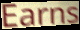
Earns